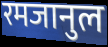
रमजानुल